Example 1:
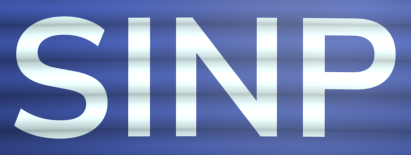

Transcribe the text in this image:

SINP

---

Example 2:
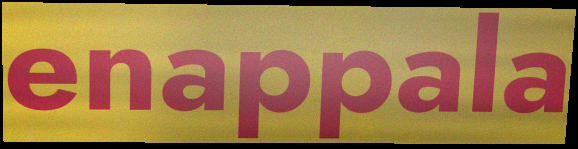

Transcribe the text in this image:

enappala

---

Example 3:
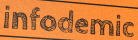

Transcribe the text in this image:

infodemic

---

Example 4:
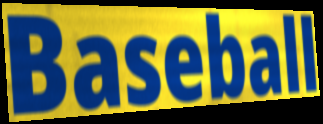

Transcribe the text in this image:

Baseball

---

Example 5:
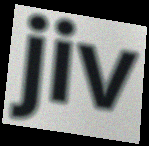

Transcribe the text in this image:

jiv